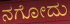
ನಗೋದು